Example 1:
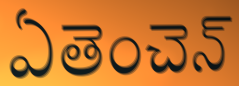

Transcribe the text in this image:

ఏతెంచెన్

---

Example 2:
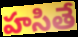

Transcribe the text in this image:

హసితే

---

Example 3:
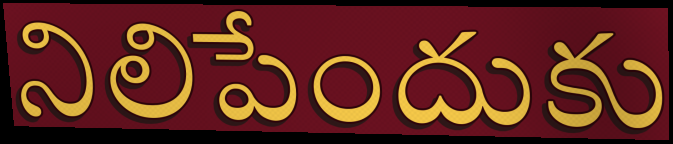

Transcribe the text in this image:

నిలిపేందుకు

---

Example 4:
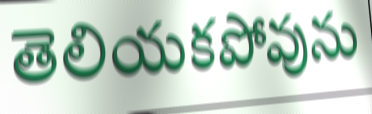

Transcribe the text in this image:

తెలియకపోవును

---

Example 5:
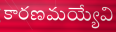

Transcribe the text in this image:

కారణమయ్యేవి